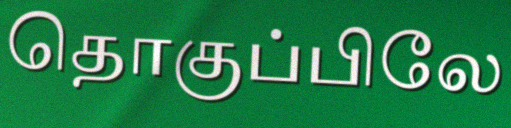
தொகுப்பிலே